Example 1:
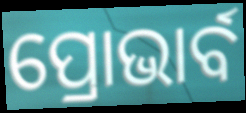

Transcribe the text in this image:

ପ୍ରୋଭାର୍ବ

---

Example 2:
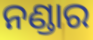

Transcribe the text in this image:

ନଣ୍ଡାର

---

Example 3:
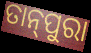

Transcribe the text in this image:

ତାନ୍‌ପୁରା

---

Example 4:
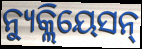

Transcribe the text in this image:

ନ୍ୟୁକ୍ଲିୟେସନ୍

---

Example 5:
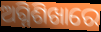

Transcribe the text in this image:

ଅଗ୍ନିଶିଖାରେ